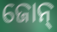
ଜୋନ୍